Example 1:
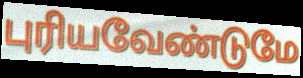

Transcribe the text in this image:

புரியவேண்டுமே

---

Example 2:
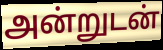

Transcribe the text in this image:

அன்றுடன்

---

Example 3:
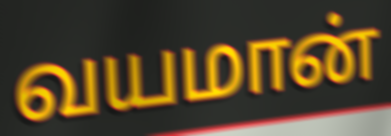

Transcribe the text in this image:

வயமான்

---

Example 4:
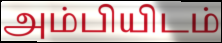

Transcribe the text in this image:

அம்பியிடம்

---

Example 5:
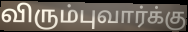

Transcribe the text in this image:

விரும்புவார்க்கு